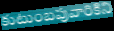
కుటుంబపువారికిని